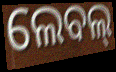
ଲେବଲ୍